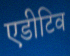
एडीटिव